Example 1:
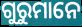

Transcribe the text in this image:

ଗୁରୁମାନେ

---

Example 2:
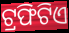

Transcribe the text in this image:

ଟ୍ରଫିଟିଏ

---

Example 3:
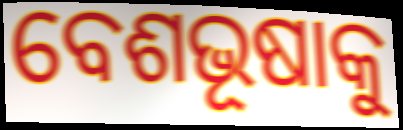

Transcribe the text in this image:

ବେଶଭୂଷାକୁ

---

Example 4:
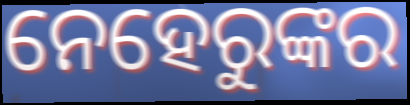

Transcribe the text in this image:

ନେହେରୁଙ୍କର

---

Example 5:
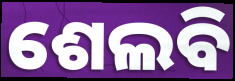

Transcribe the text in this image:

ଶେଲବି